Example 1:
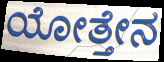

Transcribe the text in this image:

ಯೋತ್ತೇನ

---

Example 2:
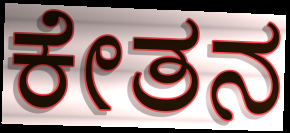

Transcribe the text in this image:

ಕೇತನ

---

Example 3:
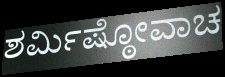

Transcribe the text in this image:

ಶರ್ಮಿಷ್ಠೋವಾಚ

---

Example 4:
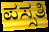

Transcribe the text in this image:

ಪಸ್ಸತಿ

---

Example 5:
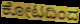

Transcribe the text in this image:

ಕೋಟದಿಂದ